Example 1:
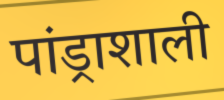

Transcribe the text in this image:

पांड्राशाली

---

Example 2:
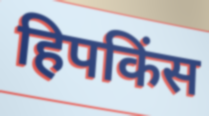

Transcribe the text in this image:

हिपकिंस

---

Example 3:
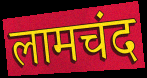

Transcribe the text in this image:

लामचंद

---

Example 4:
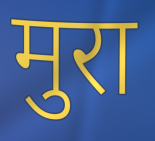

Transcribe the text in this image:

मुरा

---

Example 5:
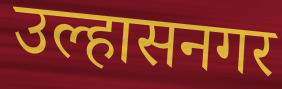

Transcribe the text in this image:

उल्हासनगर